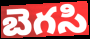
బెగసి